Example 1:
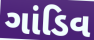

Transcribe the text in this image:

ગાંડિવ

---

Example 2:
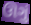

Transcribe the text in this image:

ઊગું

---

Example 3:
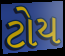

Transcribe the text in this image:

ટોય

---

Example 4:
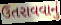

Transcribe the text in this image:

ઉતરાવવાનું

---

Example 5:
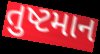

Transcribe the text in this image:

તુષ્ટમાન